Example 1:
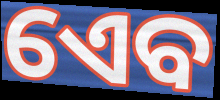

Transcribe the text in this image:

ଏେବ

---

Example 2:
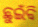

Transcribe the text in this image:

ଛୁଇଁବି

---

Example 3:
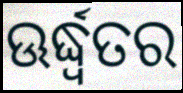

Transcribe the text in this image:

ଊର୍ଦ୍ଧ୍ଵତର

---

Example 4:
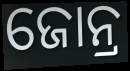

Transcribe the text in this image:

ଜୋନ୍ର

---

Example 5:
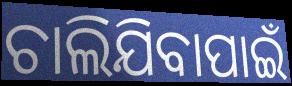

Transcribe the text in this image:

ଚାଲିଯିବାପାଇଁ